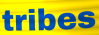
tribes